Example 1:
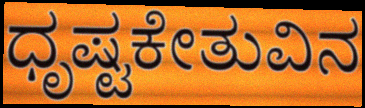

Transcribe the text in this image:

ಧೃಷ್ಟಕೇತುವಿನ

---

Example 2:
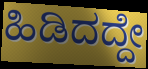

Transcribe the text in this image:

ಹಿಡಿದದ್ದೇ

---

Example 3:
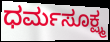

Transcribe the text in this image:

ಧರ್ಮಸೂಕ್ಷ್ಮ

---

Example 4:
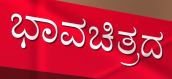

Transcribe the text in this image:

ಭಾವಚಿತ್ರದ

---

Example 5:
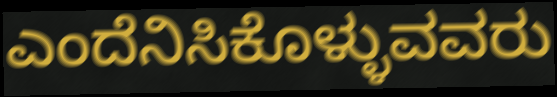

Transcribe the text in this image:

ಎಂದೆನಿಸಿಕೊಳ್ಳುವವರು